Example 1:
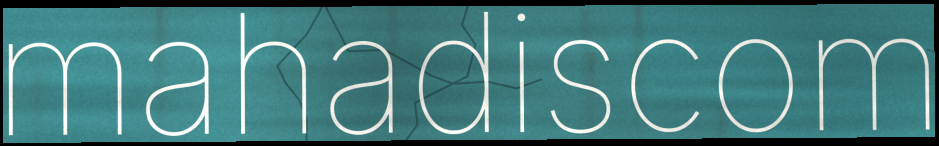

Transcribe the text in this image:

mahadiscom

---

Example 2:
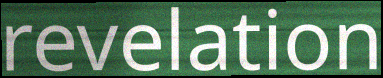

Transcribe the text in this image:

revelation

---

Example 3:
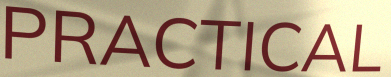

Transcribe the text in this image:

PRACTICAL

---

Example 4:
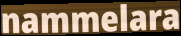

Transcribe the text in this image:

nammelara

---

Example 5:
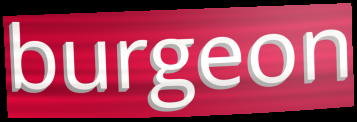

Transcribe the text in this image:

burgeon